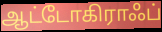
ஆட்டோகிராஃப்